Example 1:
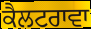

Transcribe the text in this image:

ਕੈਲਟਰਾਵਾ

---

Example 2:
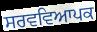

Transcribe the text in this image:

ਸਰਵਵਿਆਪਕ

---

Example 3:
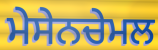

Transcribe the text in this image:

ਮੇਸੇਨਚੇਮਲ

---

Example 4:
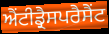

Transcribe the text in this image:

ਐਂਟੀਡ੍ਰੈਸਪਰੈਸੈਂਟ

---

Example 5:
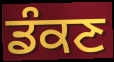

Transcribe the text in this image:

ਡੰਕਣ